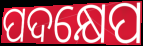
ପଦକ୍ଷେପ